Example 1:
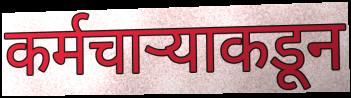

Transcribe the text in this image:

कर्मचाऱ्याकडून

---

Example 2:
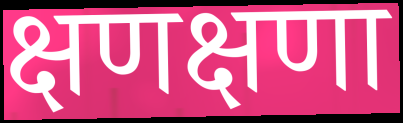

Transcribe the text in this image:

क्षणक्षणा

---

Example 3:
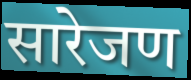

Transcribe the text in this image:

सारेजण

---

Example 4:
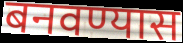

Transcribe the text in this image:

बनवण्यास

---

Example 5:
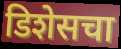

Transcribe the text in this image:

डिशेसचा